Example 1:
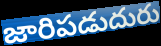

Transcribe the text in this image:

జారిపడుదురు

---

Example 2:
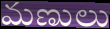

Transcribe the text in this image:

మణులు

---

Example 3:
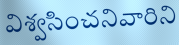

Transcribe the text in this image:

విశ్వసించనివారిని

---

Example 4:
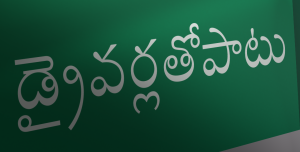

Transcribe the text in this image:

డ్రైవర్లతోపాటు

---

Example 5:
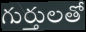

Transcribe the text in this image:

గుర్తులతో